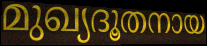
മുഖ്യദൂതനായ